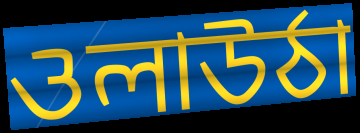
ওলাউঠা